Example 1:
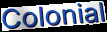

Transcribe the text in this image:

Colonial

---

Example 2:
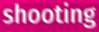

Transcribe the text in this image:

shooting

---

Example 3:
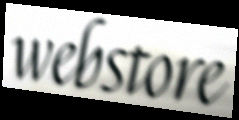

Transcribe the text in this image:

webstore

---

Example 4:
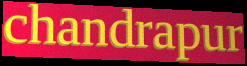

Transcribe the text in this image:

chandrapur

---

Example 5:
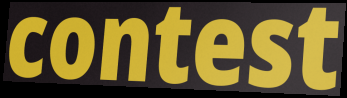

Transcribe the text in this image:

contest